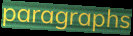
paragraphs